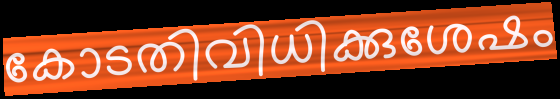
കോടതിവിധിക്കുശേഷം